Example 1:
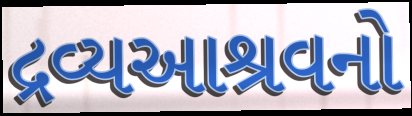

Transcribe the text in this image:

દ્રવ્યઆશ્રવનો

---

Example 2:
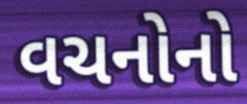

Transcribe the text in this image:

વચનોનો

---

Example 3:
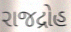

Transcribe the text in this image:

રાજદ્રોહ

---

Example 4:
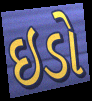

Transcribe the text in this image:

ઇડો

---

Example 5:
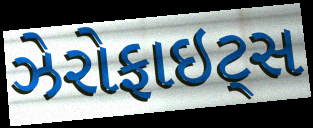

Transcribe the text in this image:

ઝેરોફાઇટ્સ